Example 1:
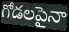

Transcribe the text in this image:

గోడలపైనా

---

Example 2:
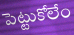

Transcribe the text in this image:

పెట్టుకోలేం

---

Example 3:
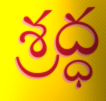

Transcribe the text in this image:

శ్రద్ధ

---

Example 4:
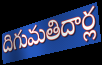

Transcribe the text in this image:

దిగుమతిదార్ల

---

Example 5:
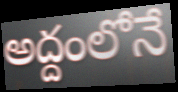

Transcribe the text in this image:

అద్దంలోనే